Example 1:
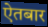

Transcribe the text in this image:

ऐतबार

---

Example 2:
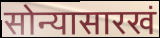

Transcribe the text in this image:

सोन्यासारखं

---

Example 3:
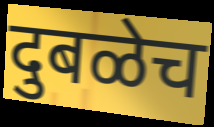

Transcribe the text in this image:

दुबळेच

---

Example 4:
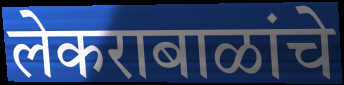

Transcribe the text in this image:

लेकराबाळांचे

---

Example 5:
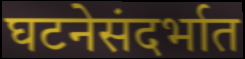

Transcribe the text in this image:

घटनेसंदर्भात